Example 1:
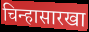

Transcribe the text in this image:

चिन्हासारखा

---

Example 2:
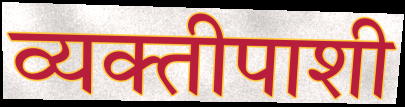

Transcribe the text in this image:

व्यक्तीपाशी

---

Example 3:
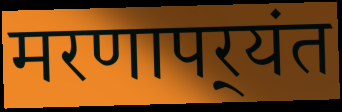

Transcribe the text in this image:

मरणापर्यंत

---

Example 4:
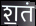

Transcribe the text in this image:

श॒तं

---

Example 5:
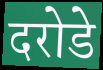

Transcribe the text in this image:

दरोडे